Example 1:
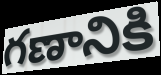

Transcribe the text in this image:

గణానికి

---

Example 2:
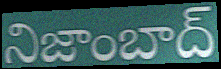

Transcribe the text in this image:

నిజాంబాద్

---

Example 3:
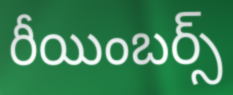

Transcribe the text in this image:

రీయింబర్స్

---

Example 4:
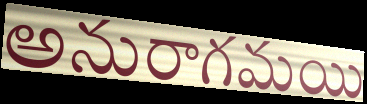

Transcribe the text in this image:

అనురాగమయి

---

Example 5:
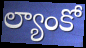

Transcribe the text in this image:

ల్యాంకో